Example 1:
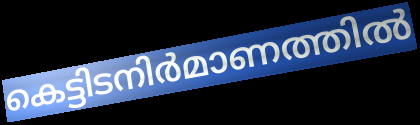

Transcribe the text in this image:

കെട്ടിടനിർമാണത്തിൽ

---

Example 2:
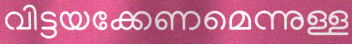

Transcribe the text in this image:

വിട്ടയക്കേണമെന്നുള്ള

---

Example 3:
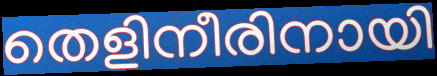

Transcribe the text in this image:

തെളിനീരിനായി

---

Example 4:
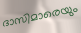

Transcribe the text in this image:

ദാസിമാരെയും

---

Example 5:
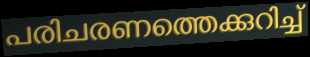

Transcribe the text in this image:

പരിചരണത്തെക്കുറിച്ച്